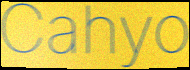
Cahyo